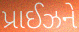
પ્રાઈઝને